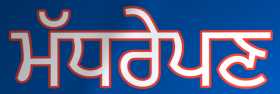
ਮੱਧਰੇਪਣ